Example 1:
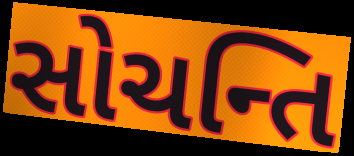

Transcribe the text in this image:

સોચન્તિ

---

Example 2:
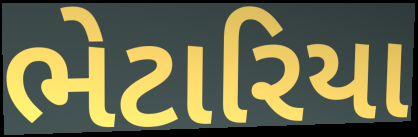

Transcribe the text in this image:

ભેટારિયા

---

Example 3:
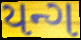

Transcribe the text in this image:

યન્ગ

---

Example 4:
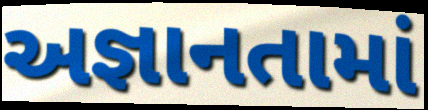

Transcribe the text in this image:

અજ્ઞાનતામાં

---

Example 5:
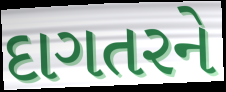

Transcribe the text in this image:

દાગતરને